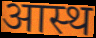
आस्थ